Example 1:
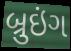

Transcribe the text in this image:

બ્રુઇંગ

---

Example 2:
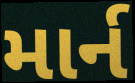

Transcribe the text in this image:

માર્ન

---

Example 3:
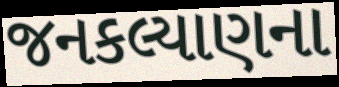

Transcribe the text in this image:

જનકલ્યાણના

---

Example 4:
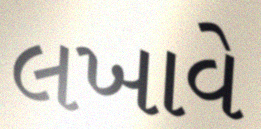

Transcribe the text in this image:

લખાવે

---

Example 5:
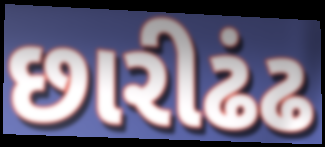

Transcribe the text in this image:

છારીઢંઢ